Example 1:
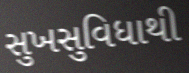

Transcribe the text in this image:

સુખસુવિધાથી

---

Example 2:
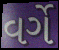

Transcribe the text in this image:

વર્ગે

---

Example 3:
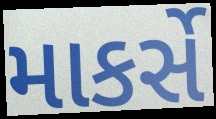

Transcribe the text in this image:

માકર્સે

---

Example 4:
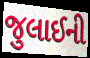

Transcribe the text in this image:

જુલાઈની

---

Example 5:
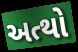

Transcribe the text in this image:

અત્થો